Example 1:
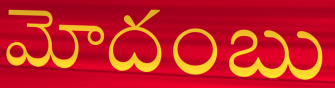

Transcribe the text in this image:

మోదంబు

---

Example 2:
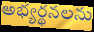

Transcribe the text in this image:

అభ్యర్థనలను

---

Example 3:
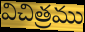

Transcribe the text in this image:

విచిత్రము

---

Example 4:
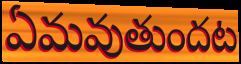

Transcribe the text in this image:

ఏమవుతుందట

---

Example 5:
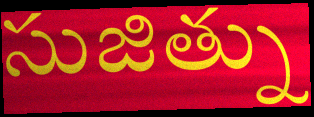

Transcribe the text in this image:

సుజిత్ను